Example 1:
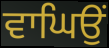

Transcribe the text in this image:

ਵਾਘਿਉਂ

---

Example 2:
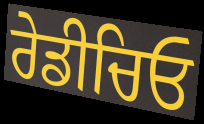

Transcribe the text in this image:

ਰੇਡੀਚਿਓ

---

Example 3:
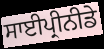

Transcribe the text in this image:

ਸਾਈਪ੍ਰੀਨੀਡੇ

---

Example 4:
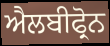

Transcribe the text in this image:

ਐਲਬੀਫ੍ਰੋਨ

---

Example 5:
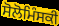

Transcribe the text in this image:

ਸੋਲੋਮਿੰਸਕੀ